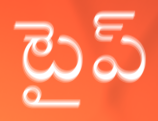
టైప్